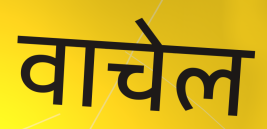
वाचेल